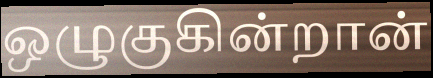
ஒழுகுகின்றான்